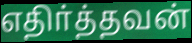
எதிர்த்தவன்